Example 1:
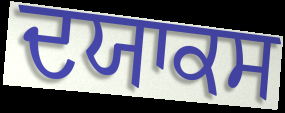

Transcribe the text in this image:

ਦਯਾਕਸ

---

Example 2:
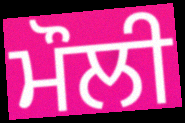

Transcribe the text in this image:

ਮੌਲੀ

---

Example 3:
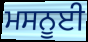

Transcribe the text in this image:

ਮਸਨੂਈ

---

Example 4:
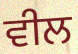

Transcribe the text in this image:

ਵੀਲ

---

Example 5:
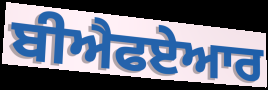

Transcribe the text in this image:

ਬੀਐਫਏਆਰ